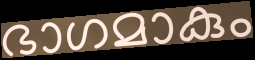
ഭാഗമാകും